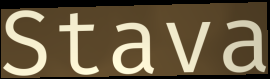
Stava